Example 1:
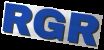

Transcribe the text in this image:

RGR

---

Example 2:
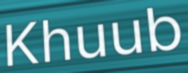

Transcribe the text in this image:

Khuub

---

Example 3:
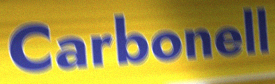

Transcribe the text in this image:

Carbonell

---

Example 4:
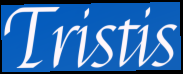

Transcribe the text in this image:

Tristis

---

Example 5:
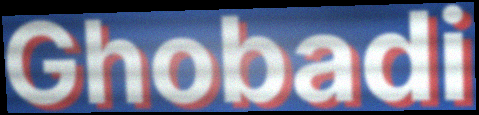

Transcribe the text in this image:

Ghobadi